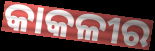
କାକଳୀର